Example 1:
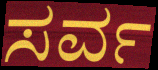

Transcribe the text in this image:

ಸರ್ವ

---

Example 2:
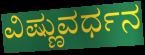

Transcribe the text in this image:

ವಿಷ್ಣುವರ್ಧನ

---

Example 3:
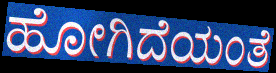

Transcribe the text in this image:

ಹೋಗಿದೆಯಂತೆ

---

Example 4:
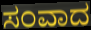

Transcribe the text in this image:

ಸಂವಾದ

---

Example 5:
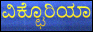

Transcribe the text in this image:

ವಿಕ್ಟೊರಿಯಾ